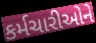
કર્મચારીઓને